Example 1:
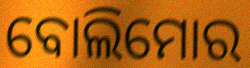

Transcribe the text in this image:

ବୋଲିମୋର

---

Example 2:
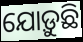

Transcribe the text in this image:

ଯୋଡ଼ୁଛି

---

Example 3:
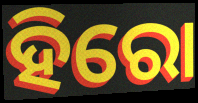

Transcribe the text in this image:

ହିରୋ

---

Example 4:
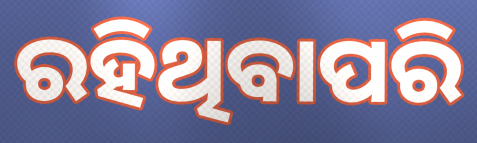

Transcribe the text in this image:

ରହିଥିବାପରି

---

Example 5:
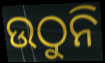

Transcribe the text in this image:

ଉଠୁନି